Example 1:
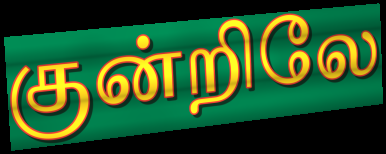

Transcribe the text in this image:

குன்றிலே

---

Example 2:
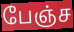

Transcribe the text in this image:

பேஞ்ச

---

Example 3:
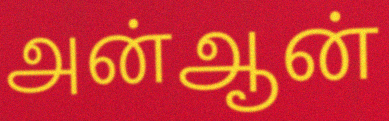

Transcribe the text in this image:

அன்ஆன்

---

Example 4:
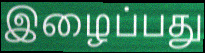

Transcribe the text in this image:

இழைப்பது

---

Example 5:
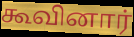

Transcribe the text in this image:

கூவினார்